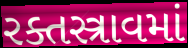
રક્તસ્ત્રાવમાં